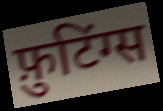
फ़ुटिंग्स